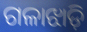
ଗଳାଝାଡ଼ି